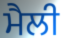
ਮੈਲੀ